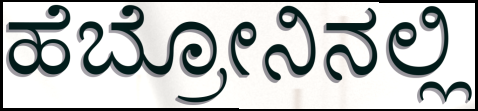
ಹೆಬ್ರೋನಿನಲ್ಲಿ